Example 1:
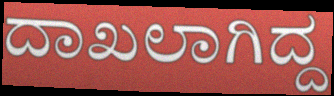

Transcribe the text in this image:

ದಾಖಲಾಗಿದ್ದ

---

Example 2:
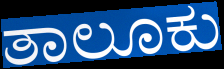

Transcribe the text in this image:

ತಾಲೂಕು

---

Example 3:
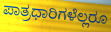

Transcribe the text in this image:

ಪಾತ್ರಧಾರಿಗಳೆಲ್ಲರೂ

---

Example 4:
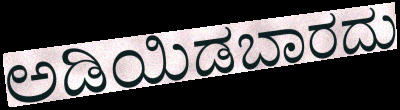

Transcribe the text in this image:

ಅಡಿಯಿಡಬಾರದು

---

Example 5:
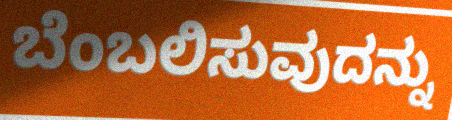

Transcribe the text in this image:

ಬೆಂಬಲಿಸುವುದನ್ನು